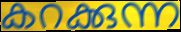
കറക്കുന്ന